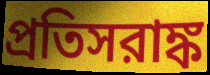
প্রতিসরাঙ্ক